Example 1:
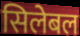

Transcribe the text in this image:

सिलेबल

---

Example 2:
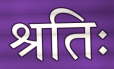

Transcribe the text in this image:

श्रतिः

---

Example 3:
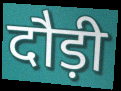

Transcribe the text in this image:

दौड़ी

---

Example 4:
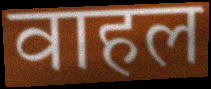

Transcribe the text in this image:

वाहल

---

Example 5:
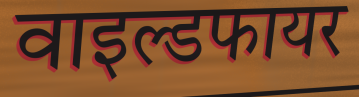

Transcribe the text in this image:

वाइल्डफायर